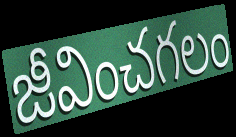
జీవించగలం